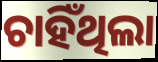
ଚାହିଁଥିଲା